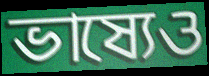
ভাষ্যেও